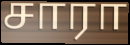
சாரா